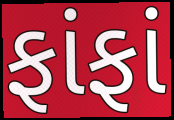
ફાંફાં